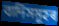
বাদিসমূহৰ